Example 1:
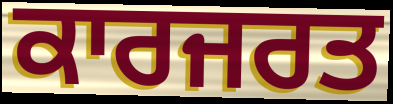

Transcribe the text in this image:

ਕਾਰਜਰਤ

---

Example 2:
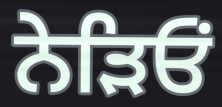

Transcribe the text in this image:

ਨੇੜਿਓਂ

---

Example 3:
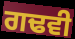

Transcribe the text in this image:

ਗਢਵੀ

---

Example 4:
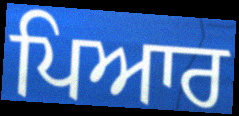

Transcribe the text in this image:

ਪਿਆਰ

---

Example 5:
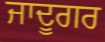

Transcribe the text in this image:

ਜਾਦੂਗਰ